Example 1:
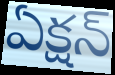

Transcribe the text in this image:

ఏక్షన్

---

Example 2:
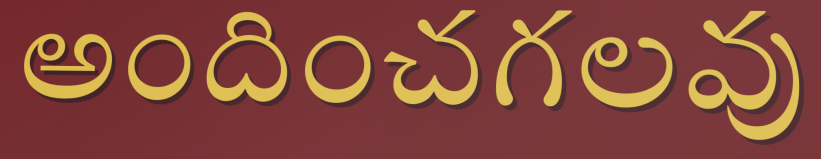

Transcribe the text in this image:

అందించగలవు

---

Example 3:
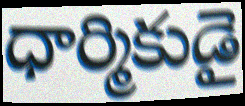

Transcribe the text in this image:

ధార్మికుడై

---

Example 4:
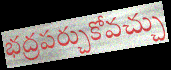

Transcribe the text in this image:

భద్రపర్చుకోవచ్చు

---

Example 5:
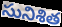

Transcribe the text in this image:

సునిశిత